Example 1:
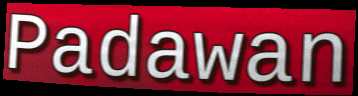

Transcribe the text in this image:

Padawan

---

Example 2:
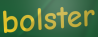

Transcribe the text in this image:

bolster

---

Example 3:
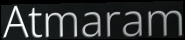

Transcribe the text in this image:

Atmaram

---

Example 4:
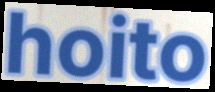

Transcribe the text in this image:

hoito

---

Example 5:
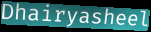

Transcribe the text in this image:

Dhairyasheel